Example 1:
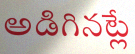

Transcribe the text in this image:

అడిగినట్లే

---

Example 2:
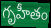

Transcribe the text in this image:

గృహీతం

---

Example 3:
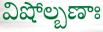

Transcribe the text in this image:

విషోల్బణాః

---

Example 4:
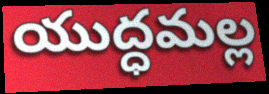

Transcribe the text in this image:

యుద్ధమల్ల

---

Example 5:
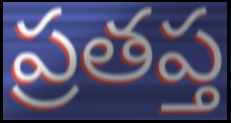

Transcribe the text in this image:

ప్రతప్త